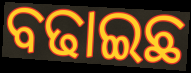
ବଢାଇଛ